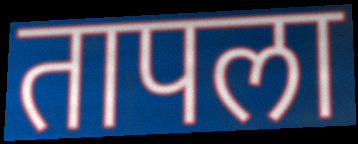
तापला